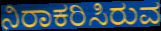
ನಿರಾಕರಿಸಿರುವ